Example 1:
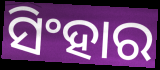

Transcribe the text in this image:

ସିଂହାର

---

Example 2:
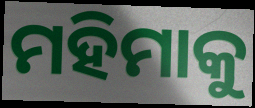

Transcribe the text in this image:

ମହିମାକୁ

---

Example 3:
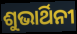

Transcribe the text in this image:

ଶୁଭାର୍ଥିନୀ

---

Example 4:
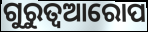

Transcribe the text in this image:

ଗୁରୁତ୍ଵଆରୋପ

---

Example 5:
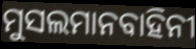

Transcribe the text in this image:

ମୁସଲମାନବାହିନୀ